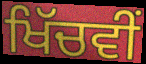
ਖਿੱਚਵੀਂ